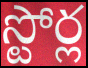
స్టోర్ల